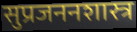
सुप्रजननशास्त्र